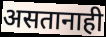
असतानाही